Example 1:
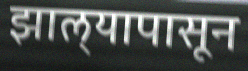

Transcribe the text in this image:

झाल्यापासून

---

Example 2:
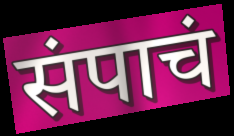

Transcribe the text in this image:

संपाचं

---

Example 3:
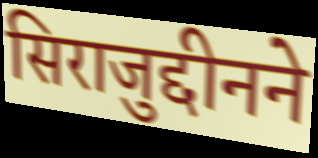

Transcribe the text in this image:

सिराजुद्दीनने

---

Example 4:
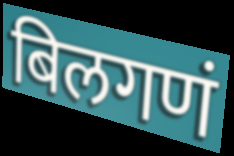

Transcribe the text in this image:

बिलगणं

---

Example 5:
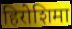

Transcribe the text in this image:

हिरोशिमा